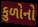
કુળોનો